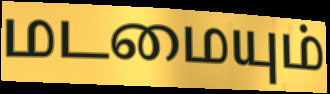
மடமையும்